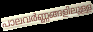
പാലവർണ്ണങ്ങളിലുള്ള